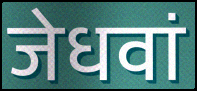
जेधवां